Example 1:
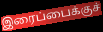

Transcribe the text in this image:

இரைப்பைக்குச்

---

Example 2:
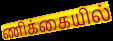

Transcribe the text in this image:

ணிக்கையில்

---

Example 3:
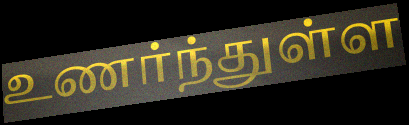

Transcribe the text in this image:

உணர்ந்துள்ள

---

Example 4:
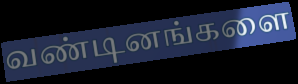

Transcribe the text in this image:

வண்டினங்களை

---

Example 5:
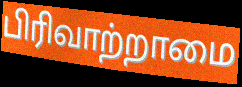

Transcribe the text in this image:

பிரிவாற்றாமை